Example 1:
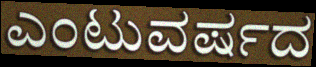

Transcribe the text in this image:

ಎಂಟುವರ್ಷದ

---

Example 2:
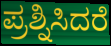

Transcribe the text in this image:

ಪ್ರಶ್ನಿಸಿದರೆ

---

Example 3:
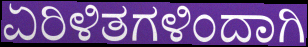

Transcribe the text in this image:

ಏರಿಳಿತಗಳಿಂದಾಗಿ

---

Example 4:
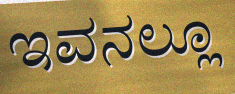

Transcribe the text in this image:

ಇವನಲ್ಲೂ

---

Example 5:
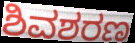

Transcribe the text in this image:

ಶಿವಶರಣ